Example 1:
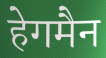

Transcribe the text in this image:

हेगमैन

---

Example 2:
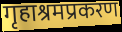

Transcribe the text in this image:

गृहाश्रमप्रकरण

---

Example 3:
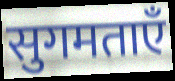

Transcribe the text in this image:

सुगमताएँ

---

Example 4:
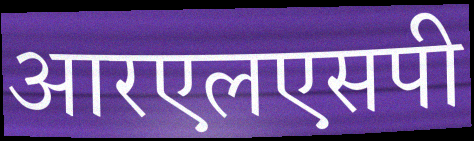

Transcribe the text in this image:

आरएलएसपी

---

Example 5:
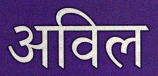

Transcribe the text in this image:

अविल